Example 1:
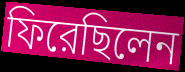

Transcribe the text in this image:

ফিরেছিলেন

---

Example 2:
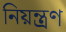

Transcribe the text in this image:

নিয়ন্ত্রণ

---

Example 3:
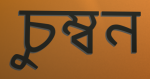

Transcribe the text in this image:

চুম্বন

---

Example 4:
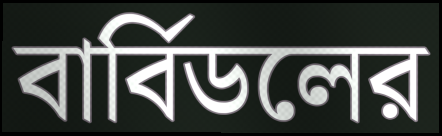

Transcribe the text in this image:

বার্বিডলের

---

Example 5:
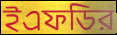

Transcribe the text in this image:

ইএফডির